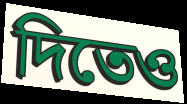
দিতেও